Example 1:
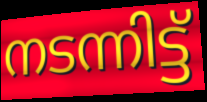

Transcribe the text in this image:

നടന്നിട്ട്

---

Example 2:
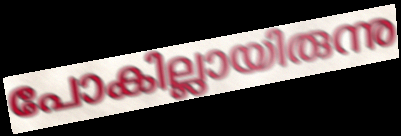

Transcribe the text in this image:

പോകില്ലായിരുന്നു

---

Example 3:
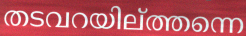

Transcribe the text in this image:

തടവറയില്ത്തന്നെ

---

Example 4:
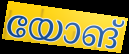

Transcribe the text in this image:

യോങ്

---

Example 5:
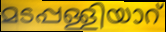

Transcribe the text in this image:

മടപ്പള്ളിയാറ്